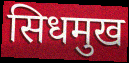
सिधमुख